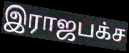
இராஜபக்ச